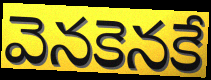
వెనకెనకే